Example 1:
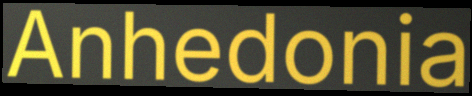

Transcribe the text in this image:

Anhedonia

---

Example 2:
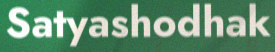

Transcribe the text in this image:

Satyashodhak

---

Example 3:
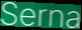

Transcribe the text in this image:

Serna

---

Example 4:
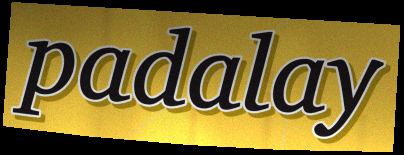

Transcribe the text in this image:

padalay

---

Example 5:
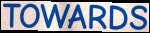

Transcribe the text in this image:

TOWARDS